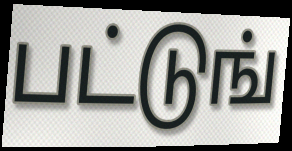
பட்டுங்